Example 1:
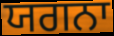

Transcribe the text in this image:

ਯਗਨਾ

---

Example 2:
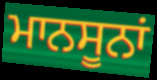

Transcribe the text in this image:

ਮਾਨਸੂਨਾਂ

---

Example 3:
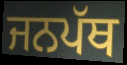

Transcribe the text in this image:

ਜਨਪੱਥ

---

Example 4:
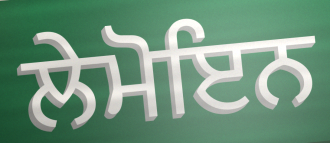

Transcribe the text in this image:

ਲੇਮੋਇਨ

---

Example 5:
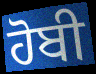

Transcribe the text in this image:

ਹੋਬੀ